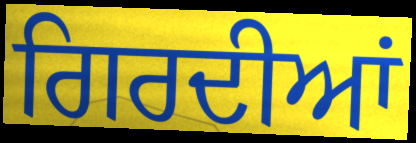
ਗਿਰਦੀਆਂ